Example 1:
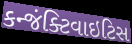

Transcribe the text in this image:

કન્જંક્ટિવાઇટિસ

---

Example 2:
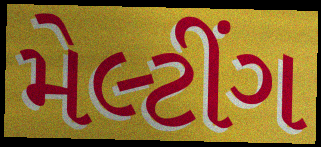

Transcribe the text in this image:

મેલ્ટીંગ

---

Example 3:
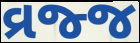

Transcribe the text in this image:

વ્રજ્જ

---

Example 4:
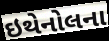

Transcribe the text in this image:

ઇથેનોલના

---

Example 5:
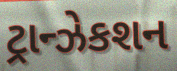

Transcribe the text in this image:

ટ્રાન્ઝેકશન